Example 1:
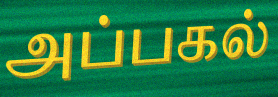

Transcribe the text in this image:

அப்பகல்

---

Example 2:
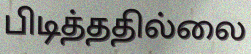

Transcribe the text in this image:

பிடித்ததில்லை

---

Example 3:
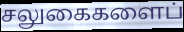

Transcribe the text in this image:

சலுகைகளைப்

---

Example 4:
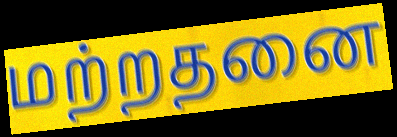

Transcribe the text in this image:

மற்றதனை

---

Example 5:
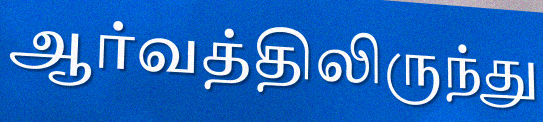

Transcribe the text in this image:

ஆர்வத்திலிருந்து